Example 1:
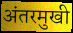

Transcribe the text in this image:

अंतरमुखी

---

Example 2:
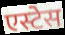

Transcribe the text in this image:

एस्टेस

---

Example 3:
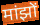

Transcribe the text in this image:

मांझों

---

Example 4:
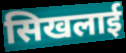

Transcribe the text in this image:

सिखलाई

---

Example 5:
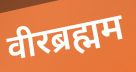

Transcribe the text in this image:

वीरब्रह्मम